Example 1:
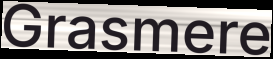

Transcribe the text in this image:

Grasmere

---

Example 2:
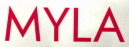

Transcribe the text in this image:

MYLA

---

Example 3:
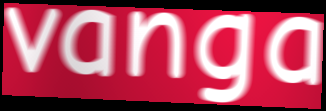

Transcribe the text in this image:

vanga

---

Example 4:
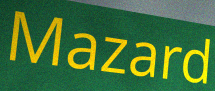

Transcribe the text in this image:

Mazard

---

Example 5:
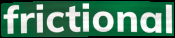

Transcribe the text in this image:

frictional